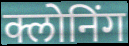
क्लोनिंग